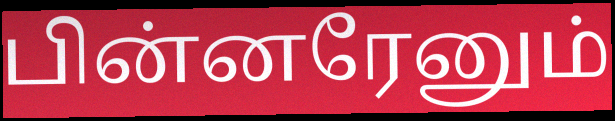
பின்னரேனும்